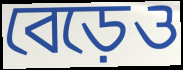
বেড়েও